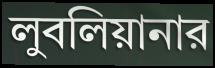
লুবলিয়ানার